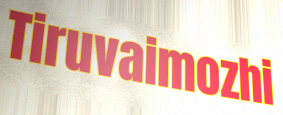
Tiruvaimozhi